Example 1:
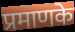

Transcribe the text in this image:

प्रमाणके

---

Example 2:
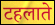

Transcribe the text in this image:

टहलाते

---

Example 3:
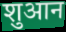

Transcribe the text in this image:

शुआन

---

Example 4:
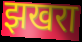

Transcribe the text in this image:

झखरा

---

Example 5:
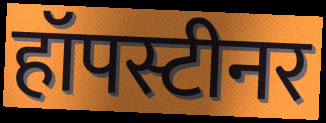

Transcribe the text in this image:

हॉपस्टीनर